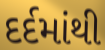
દર્દમાંથી